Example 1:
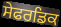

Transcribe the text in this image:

ਸੇਫਰਡਿਕ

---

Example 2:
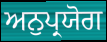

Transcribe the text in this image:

ਅਨੁਪ੍ਰਯੋਗ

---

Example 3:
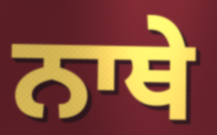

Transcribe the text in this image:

ਨਾਥੇ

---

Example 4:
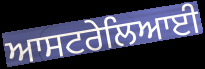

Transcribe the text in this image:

ਆਸਟਰੇਲਿਆਈ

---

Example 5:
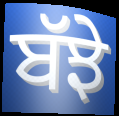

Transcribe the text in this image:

ਬੱਝੇ